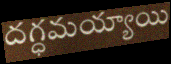
దగ్ధమయ్యాయి